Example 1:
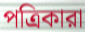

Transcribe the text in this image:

পত্রিকারা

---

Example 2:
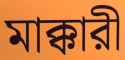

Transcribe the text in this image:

মাক্কারী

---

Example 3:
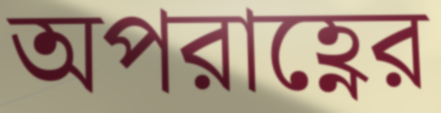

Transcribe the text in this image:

অপরাহ্ণের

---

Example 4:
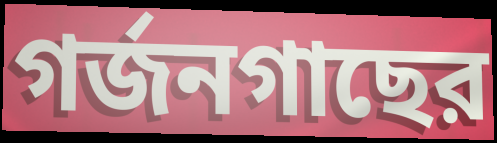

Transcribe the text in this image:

গর্জনগাছের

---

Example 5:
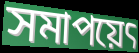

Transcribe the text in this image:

সমাপয়েৎ